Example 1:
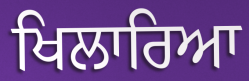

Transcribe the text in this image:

ਖਿਲਾਰਿਆ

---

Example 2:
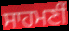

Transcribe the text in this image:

ਸਾਹਮਣੀਂ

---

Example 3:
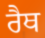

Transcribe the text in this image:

ਰੈਥ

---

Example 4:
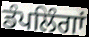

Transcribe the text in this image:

ਡੰਪਲਿੰਗਾਂ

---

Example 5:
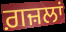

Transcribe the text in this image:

ਗ਼ਜ਼ਲਾਂ